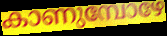
കാണുമ്പോഴേ